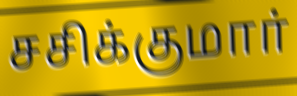
சசிக்குமார்